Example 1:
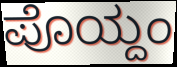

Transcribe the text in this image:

ಪೊಯ್ದಂ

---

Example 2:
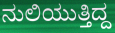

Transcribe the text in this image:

ನುಲಿಯುತ್ತಿದ್ದ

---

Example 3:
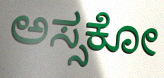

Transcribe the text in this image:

ಅಸ್ಸಕೋ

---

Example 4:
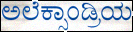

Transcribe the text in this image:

ಅಲೆಕ್ಸಾಂಡ್ರಿಯ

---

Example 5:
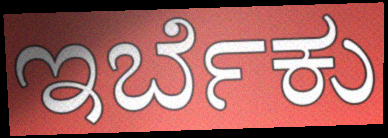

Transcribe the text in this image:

ಇರ್ಬೆಕು